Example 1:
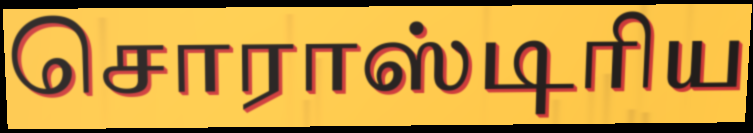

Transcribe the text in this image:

சொராஸ்டிரிய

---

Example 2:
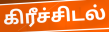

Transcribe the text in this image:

கிரீச்சிடல்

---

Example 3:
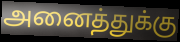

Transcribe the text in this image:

அனைத்துக்கு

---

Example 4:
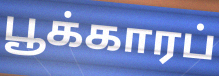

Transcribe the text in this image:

பூக்காரப்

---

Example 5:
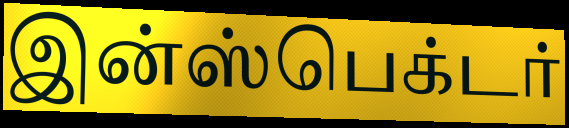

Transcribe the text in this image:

இன்ஸ்பெக்டர்